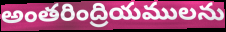
అంతరింద్రియములను